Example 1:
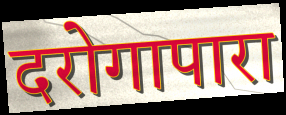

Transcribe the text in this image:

दरोगापारा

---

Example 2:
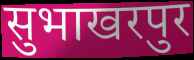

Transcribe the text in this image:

सुभाखरपुर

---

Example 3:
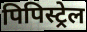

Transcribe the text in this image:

पिपिस्ट्रेल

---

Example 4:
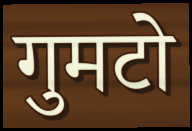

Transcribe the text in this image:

गुमटो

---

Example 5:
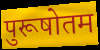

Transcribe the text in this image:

पुरूषोतम